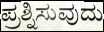
ಪ್ರಶ್ನಿಸುವುದು